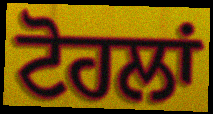
ਟੋਹਲਾਂ